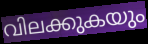
വിലക്കുകയും